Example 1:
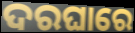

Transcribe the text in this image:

ଦରଘାରେ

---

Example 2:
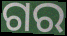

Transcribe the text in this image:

ଗର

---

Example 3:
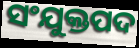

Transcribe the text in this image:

ସଂଯୁକ୍ତପଦ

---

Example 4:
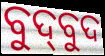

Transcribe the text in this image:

ବୁଦ୍‌ବୁଦ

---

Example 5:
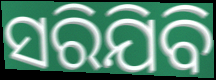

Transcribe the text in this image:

ସରିଯିବି